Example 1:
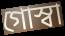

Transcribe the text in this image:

গোস্বা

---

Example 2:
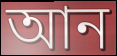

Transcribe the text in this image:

আন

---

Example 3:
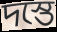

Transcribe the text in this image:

দস্তে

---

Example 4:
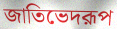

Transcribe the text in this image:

জাতিভেদরূপ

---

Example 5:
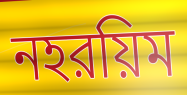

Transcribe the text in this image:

নহরয়িম